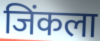
जिंकला